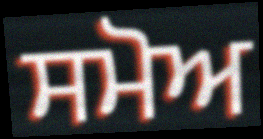
ਸਮੋਅ